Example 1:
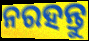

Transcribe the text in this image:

ନରହନ୍ତୁ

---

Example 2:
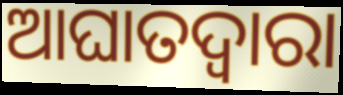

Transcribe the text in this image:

ଆଘାତଦ୍ୱାରା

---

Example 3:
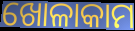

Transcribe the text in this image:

ଖୋଳାକାମ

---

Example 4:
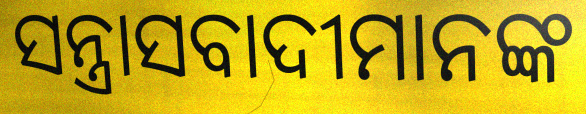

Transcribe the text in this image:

ସନ୍ତ୍ରାସବାଦୀମାନଙ୍କ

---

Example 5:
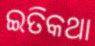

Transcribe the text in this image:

ଇତିକଥା